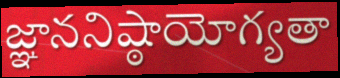
జ్ఞాననిష్ఠాయోగ్యతా